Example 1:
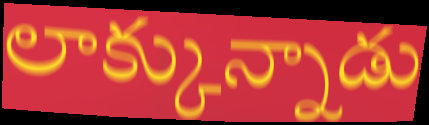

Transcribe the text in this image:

లాక్కున్నాడు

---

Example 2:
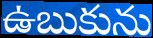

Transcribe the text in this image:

ఉబుకును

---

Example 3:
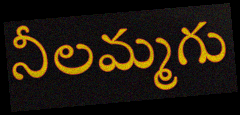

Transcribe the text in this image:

నీలమ్మగు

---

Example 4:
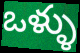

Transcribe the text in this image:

ఒళ్ళు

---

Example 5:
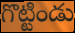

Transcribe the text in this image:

గొట్టిండు